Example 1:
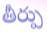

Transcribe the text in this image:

తీర్పు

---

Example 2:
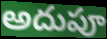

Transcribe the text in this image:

అదుపూ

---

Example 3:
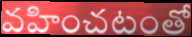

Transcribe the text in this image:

వహించటంతో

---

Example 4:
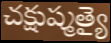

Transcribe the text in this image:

చక్షుష్మత్యై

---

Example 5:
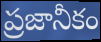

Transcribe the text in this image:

ప్రజానీకం